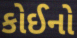
કોઈનો